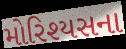
મોરિશ્યસના